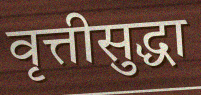
वृत्तीसुद्धा